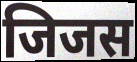
जिजस